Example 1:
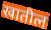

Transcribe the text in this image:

खातील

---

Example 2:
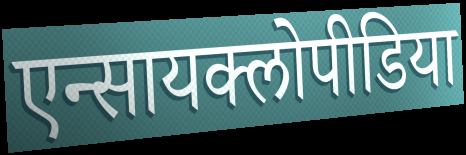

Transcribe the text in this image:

एन्सायक्लोपीडिया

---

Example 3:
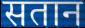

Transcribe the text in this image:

सतान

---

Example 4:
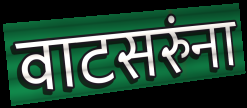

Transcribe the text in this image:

वाटसरुंना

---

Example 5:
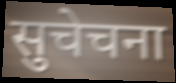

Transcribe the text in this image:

सुचेचना